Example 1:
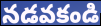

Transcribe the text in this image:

నడవకండి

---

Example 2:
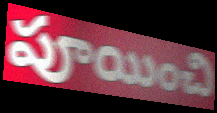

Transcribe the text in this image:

పూయించి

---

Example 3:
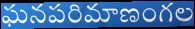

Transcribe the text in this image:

ఘనపరిమాణంగల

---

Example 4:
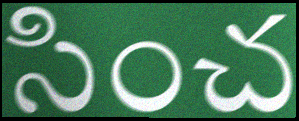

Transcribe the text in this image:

సించ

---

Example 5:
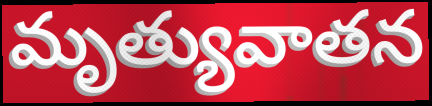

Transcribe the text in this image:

మృత్యువాతన